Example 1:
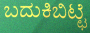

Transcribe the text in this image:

ಬದುಕಿಬಿಟ್ಟೆ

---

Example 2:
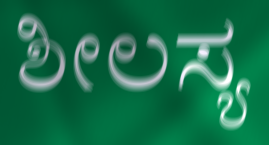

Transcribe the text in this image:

ಶೀಲಸ್ಯ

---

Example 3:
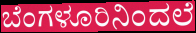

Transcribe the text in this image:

ಬೆಂಗಳೂರಿನಿಂದಲೆ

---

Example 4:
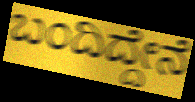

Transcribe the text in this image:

ಬಂದಿದ್ದೇನೆ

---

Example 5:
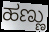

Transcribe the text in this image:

ಹಣ್ಣು